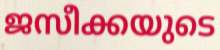
ജസീക്കയുടെ